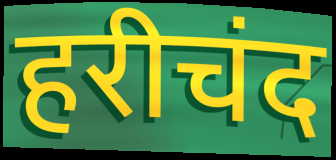
हरीचंद